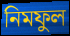
নিমফুল